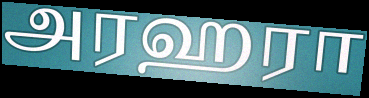
அரஹரா